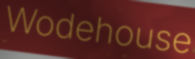
Wodehouse